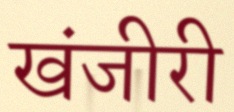
खंजीरी